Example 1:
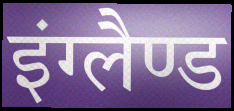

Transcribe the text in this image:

इंग्‍लैण्‍ड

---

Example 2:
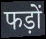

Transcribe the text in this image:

फड़ों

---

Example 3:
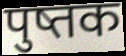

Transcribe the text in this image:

पुष्तक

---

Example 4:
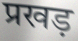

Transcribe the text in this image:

प्रखड़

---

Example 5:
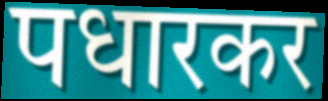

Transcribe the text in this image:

पधारकर